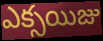
ఎక్సయిజు